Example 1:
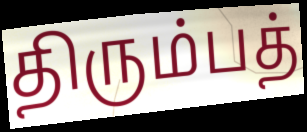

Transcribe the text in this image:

திரும்பத்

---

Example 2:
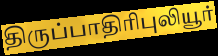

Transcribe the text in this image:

திருப்பாதிரிபுலியூர்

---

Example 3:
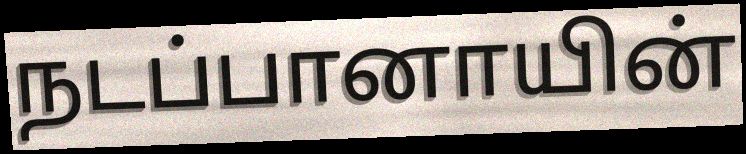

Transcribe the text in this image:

நடப்பானாயின்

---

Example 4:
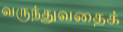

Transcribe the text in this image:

வருந்துவதைக்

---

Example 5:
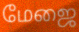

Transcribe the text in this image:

மேஜை